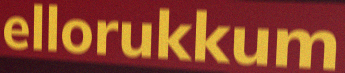
ellorukkum